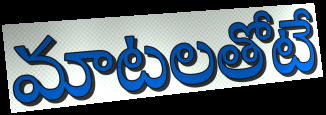
మాటలతోటే